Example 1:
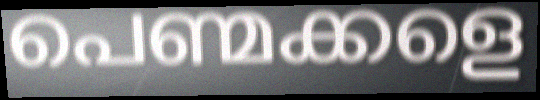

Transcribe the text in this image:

പെണ്മക്കളെ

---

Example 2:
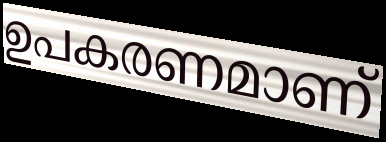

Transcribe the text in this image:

ഉപകരണമാണ്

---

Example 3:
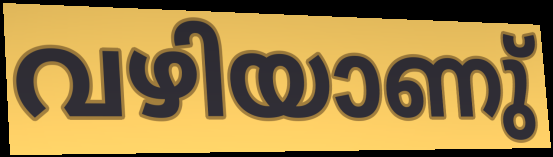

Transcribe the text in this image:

വഴിയാണു്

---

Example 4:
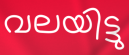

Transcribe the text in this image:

വലയിട്ടു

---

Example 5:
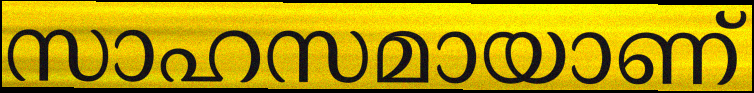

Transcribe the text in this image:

സാഹസമായാണ്